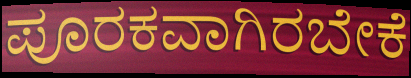
ಪೂರಕವಾಗಿರಬೇಕೆ